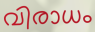
വിരാധം